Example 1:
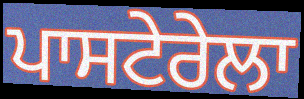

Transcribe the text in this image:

ਪਾਸਟੇਰੇਲਾ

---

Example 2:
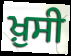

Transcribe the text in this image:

ਖ਼ੁਸੀ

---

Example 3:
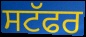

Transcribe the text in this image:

ਸਟੱਫਰ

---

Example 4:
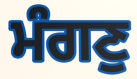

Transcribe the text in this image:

ਮੰਗਣੁ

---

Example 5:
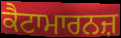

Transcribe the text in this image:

ਕੈਟਾਮਾਰਨਜ਼